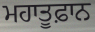
ਮਹਾਤੂਫ਼ਾਨ